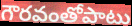
గౌరవంతోపాటు